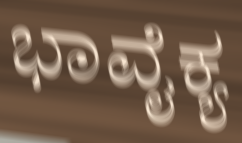
ಭಾವೈಕ್ಯ